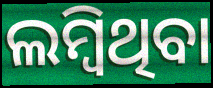
ଲମ୍ବିଥିବା